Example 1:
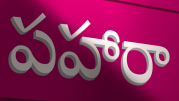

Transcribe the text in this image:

పహారా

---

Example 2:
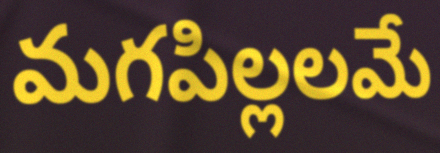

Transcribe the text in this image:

మగపిల్లలమే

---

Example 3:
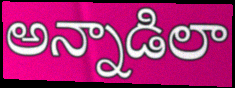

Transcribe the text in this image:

అన్నాడిలా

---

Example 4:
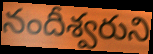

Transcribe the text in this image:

నందీశ్వరుని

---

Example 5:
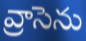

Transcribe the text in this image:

వ్రాసెను